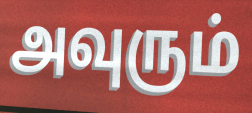
அவுரும்